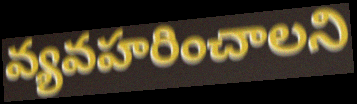
వ్యవహరించాలని